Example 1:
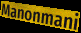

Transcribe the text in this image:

Manonmani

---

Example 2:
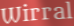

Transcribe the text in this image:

Wirral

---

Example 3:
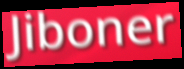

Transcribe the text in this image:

Jiboner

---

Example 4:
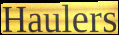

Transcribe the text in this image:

Haulers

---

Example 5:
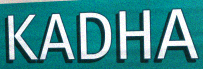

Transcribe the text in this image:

KADHA